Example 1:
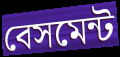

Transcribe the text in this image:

বেসমেন্ট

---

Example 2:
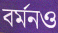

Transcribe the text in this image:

বর্মনও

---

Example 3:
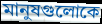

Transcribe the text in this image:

মানুষগুলোকে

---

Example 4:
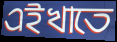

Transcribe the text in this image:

এইখাতে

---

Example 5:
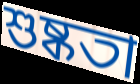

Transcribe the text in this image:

শুষ্কতা